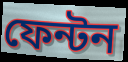
ফেন্টন